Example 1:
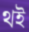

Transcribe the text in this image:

থই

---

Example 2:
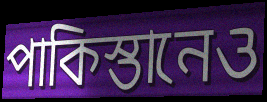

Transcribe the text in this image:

পাকিস্তানেও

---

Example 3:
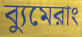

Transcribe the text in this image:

ব্যুমেরাং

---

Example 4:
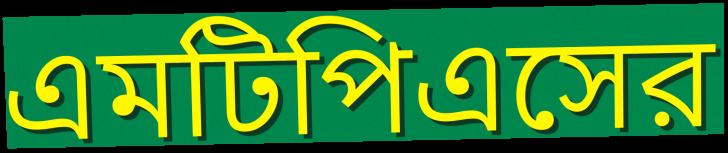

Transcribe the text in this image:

এমটিপিএসের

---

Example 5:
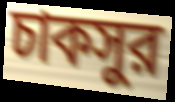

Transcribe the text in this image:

চাকসুর